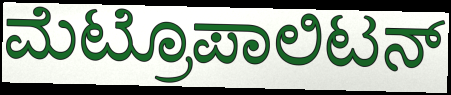
ಮೆಟ್ರೊಪಾಲಿಟನ್